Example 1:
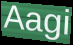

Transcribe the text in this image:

Aagi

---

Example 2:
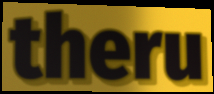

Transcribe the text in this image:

theru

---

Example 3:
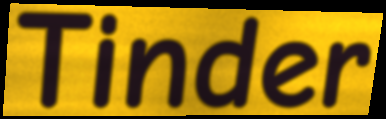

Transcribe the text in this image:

Tinder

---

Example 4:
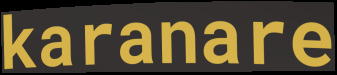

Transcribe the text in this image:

karanare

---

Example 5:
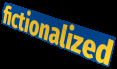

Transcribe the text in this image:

fictionalized